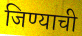
जिण्याची